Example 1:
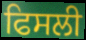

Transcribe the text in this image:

ਫਿਸਲੀ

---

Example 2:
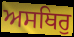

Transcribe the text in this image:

ਅਸਥਿਰੁ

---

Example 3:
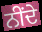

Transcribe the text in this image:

ਨੀਂਦੇ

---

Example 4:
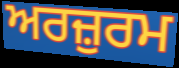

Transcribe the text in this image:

ਅਰਜ਼ੁਰਮ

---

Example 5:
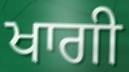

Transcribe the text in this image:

ਖਾਗੀ